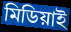
মিডিয়াই